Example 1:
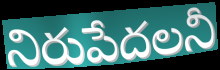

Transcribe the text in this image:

నిరుపేదలనీ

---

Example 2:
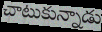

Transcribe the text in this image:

చాటుకున్నాడు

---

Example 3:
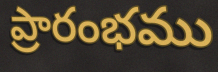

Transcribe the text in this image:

ప్రారంభము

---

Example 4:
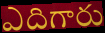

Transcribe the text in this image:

ఎదిగారు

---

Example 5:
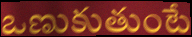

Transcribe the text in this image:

ఒణుకుతుంటే